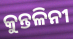
କୁନ୍ତଳିନୀ